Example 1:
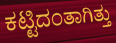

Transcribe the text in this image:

ಕಟ್ಟಿದಂತಾಗಿತ್ತು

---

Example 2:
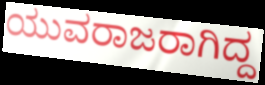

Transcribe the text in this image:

ಯುವರಾಜರಾಗಿದ್ದ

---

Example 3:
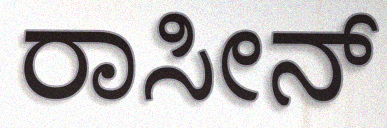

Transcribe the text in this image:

ರಾಸೀನ್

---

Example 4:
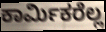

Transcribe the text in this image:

ಕಾರ್ಮಿಕರೆಲ್ಲ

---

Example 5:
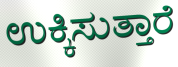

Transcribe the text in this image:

ಉಕ್ಕಿಸುತ್ತಾರೆ